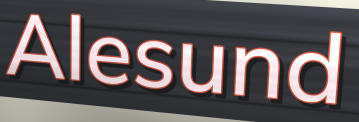
Alesund